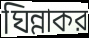
ঘিন্নাকর